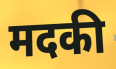
मदकी